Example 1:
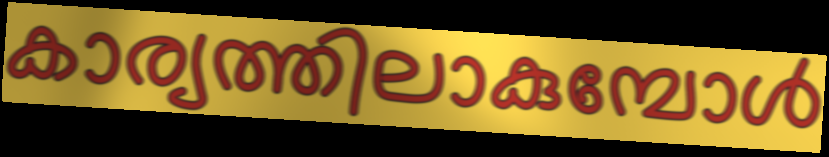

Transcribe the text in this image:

കാര്യത്തിലാകുമ്പോൾ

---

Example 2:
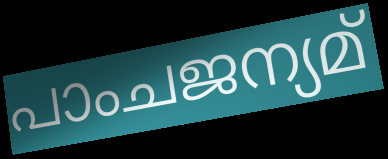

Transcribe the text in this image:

പാംചജന്യമ്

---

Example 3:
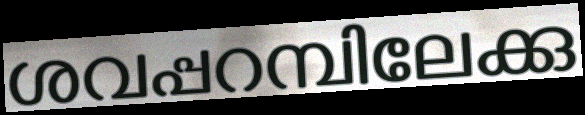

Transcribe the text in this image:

ശവപ്പറമ്പിലേക്കു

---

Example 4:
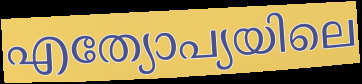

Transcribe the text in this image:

എത്യോപ്യയിലെ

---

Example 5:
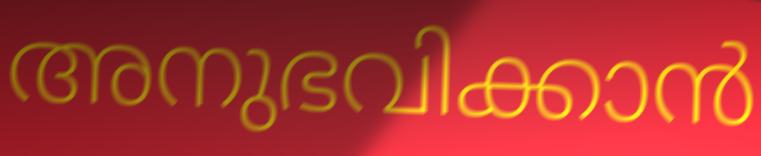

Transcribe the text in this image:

അനുഭവിക്കാൻ